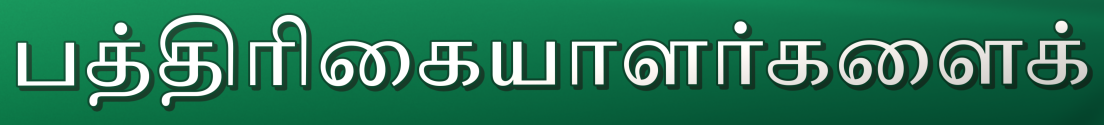
பத்திரிகையாளர்களைக்